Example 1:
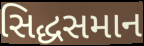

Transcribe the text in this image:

સિદ્ધસમાન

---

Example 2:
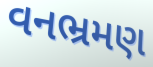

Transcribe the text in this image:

વનભ્રમણ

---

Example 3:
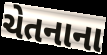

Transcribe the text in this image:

ચેતનાના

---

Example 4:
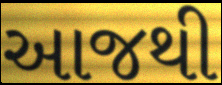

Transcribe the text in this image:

આજથી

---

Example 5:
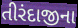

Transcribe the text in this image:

તીરંદાજીના